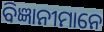
ବିଜ୍ଞାନୀମାନେ